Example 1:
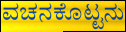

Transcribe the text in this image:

ವಚನಕೊಟ್ಟನು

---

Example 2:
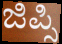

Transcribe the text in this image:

ಜಿಪ್ಸಿ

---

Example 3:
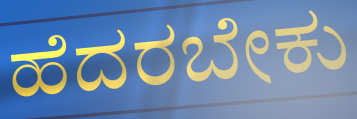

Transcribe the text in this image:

ಹೆದರಬೇಕು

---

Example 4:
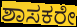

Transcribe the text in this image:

ಶಾಸಕರೇ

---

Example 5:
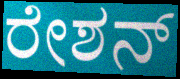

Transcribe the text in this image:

ರೇಶನ್